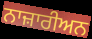
ਨਾਜ਼ਾਰੀਅਨ